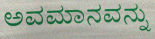
ಅವಮಾನವನ್ನು